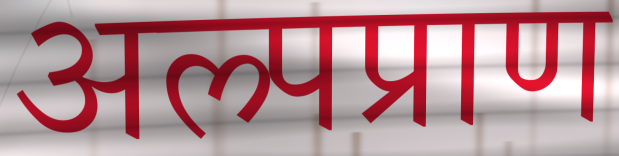
अल्पप्राण